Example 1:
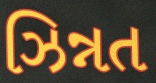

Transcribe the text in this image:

ઝિન્નત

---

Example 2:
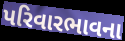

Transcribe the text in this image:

પરિવારભાવના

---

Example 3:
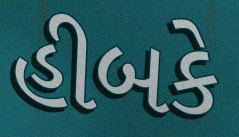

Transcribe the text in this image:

હીબકે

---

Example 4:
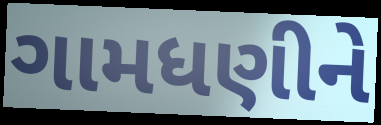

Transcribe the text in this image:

ગામધણીને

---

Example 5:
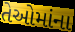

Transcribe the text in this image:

તેઓમાંના